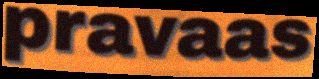
pravaas